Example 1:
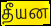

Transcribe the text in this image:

தீயன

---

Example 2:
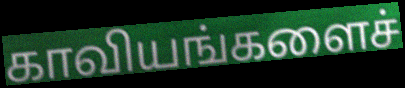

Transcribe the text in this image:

காவியங்களைச்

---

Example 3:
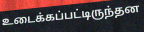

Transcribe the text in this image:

உடைக்கப்பட்டிருந்தன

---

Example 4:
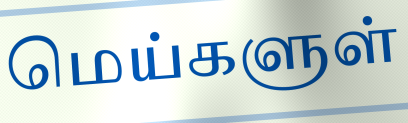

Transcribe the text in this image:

மெய்களுள்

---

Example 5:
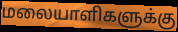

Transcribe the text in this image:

மலையாளிகளுக்கு